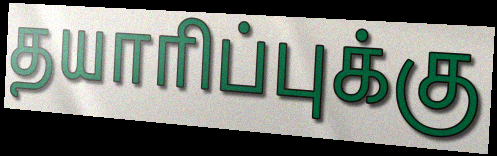
தயாரிப்புக்கு